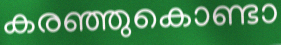
കരഞ്ഞുകൊണ്ടാ